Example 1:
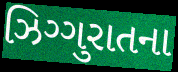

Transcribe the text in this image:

ઝિગ્ગુરાતના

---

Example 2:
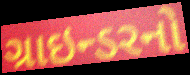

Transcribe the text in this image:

ગ્રાઇન્ડરનો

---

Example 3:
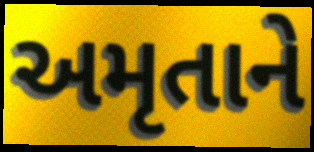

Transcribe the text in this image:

અમૃતાને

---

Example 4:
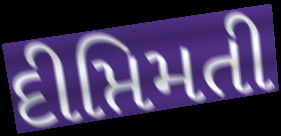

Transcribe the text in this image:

દીપ્તિમતી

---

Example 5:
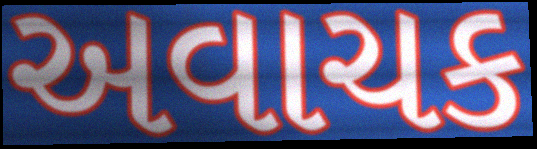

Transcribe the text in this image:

અવાચક